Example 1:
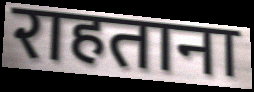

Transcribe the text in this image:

राहताना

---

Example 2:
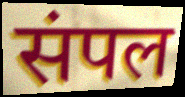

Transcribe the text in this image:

संपल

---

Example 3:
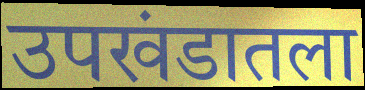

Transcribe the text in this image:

उपखंडातला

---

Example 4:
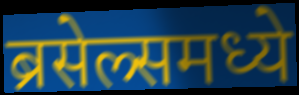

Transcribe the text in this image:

ब्रसेल्समध्ये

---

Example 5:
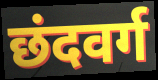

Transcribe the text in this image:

छंदवर्ग